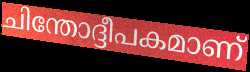
ചിന്തോദ്ദീപകമാണ്